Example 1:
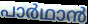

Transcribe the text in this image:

പാർഥാൻ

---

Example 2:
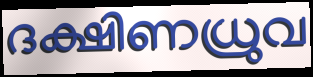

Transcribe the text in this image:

ദക്ഷിണധ്രുവ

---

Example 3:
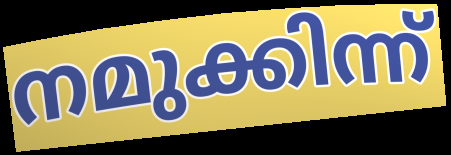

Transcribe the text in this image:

നമുക്കിന്ന്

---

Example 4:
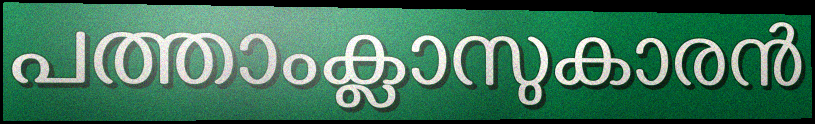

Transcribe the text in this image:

പത്താംക്ലാസുകാരൻ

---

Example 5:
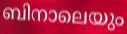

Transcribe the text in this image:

ബിനാലെയും